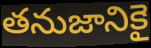
తనుజానికై